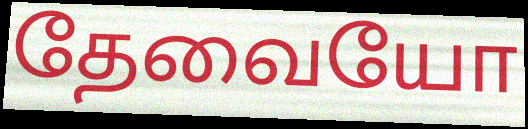
தேவையோ